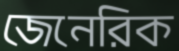
জেনেরিক